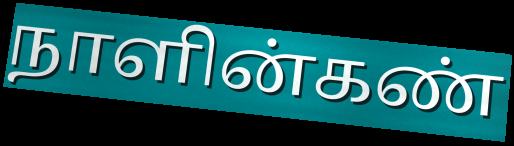
நாளின்கண்